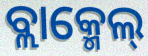
ବ୍ଲାକ୍ମେଲ୍